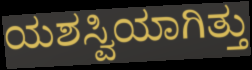
ಯಶಸ್ವಿಯಾಗಿತ್ತು